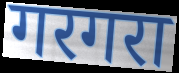
गरगरा